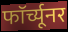
फॉर्च्यूनर